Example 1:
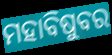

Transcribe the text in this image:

ମହାବିଷୁବର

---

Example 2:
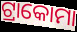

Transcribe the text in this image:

ଟ୍ରାକୋମା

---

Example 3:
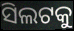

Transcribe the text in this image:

ସିଲଟକୁ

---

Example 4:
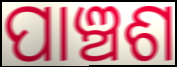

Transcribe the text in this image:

ପାଞ୍ଚଶ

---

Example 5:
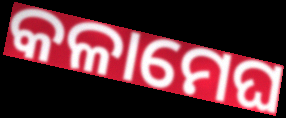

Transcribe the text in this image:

କଳାମେଘ